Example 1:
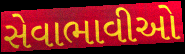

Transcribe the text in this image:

સેવાભાવીઓ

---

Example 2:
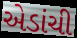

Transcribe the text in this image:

એડાંચી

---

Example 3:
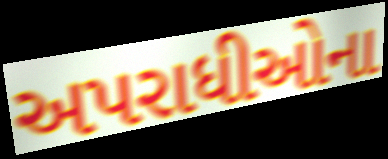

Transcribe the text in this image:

અપરાધીઓના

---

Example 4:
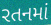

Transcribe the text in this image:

રતનમાં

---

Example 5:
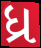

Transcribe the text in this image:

ધ્ર